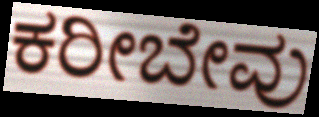
ಕರೀಬೇವು